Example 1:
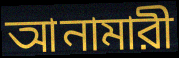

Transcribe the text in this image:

আনামারী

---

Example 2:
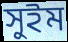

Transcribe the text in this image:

সুইম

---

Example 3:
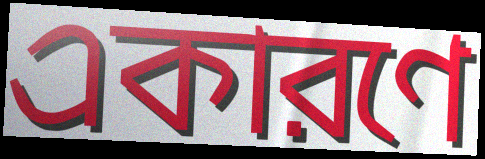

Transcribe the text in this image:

একারণে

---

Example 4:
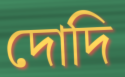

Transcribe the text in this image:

দোদি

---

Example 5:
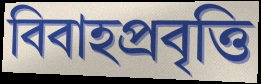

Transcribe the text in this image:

বিবাহপ্রবৃত্তি